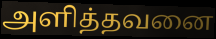
அளித்தவனை